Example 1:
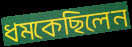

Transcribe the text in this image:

ধমকেছিলেন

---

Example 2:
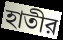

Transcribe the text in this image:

হাতীর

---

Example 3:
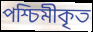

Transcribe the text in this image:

পশ্চিমীকৃত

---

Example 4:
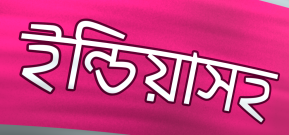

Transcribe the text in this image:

ইন্ডিয়াসহ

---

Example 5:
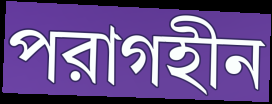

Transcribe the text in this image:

পরাগহীন